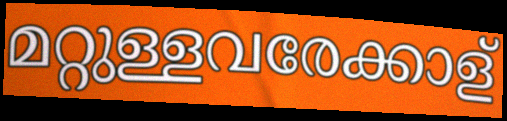
മറ്റുള്ളവരേക്കാള്